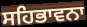
ਸਹਿਭਾਵਨਾ